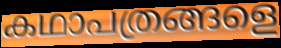
കഥാപത്രങ്ങളെ